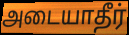
அடையாதீர்